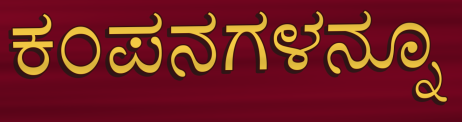
ಕಂಪನಗಳನ್ನೂ